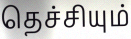
தெச்சியும்